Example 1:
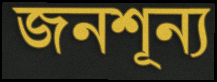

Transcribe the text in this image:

জনশূন্য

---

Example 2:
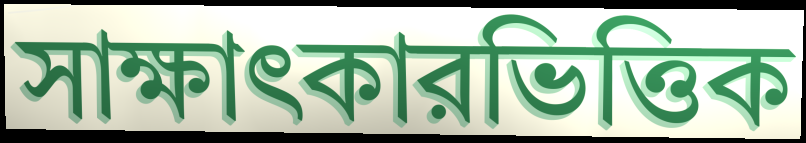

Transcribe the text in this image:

সাক্ষাৎকারভিত্তিক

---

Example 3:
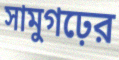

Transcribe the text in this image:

সামুগঢ়ের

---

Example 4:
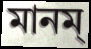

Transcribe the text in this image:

মানম্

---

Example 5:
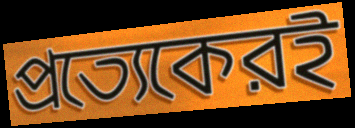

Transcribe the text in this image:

প্রত্যেকেরই